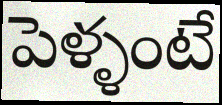
పెళ్ళంటే